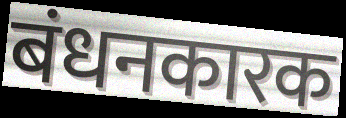
बंधनकारक